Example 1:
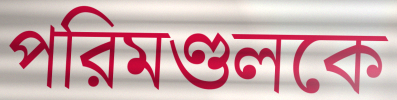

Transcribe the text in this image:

পরিমণ্ডলকে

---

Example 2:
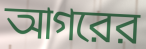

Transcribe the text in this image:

আগরের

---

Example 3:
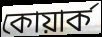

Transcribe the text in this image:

কোয়ার্ক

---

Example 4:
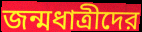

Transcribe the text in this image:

জন্মধাত্রীদের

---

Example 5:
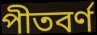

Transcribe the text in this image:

পীতবর্ণ